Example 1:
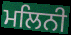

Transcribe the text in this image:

ਮਲਿਨੀ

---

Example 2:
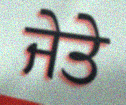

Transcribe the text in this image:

ਜੇਤੇ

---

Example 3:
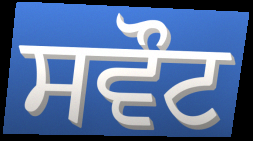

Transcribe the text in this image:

ਸਵੌਟ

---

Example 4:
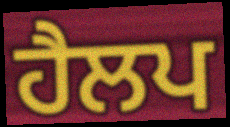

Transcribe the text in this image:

ਹੈਲਪ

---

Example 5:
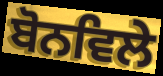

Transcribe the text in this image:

ਬੋਨਵਿਲੇ